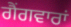
ਗੈਂਗਵਾਰਾਂ